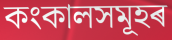
কংকালসমূহৰ